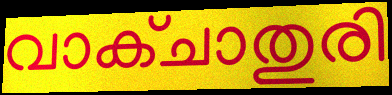
വാക്ചാതുരി